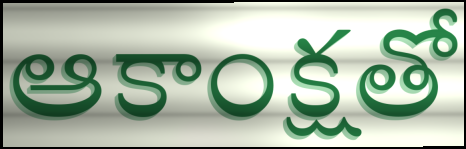
ఆకాంక్షతో